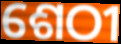
ଶେଠୀ